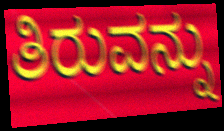
ತಿರುವನ್ನು